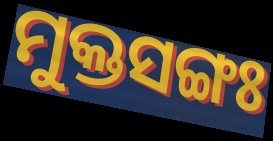
ମୁକ୍ତସଙ୍ଗଃ